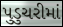
પુડુચરીમાં